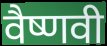
वैष्णवी